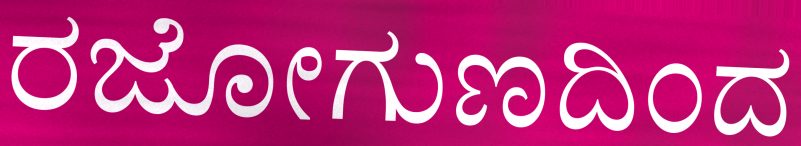
ರಜೋಗುಣದಿಂದ